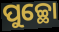
ପୁଚ୍ଛୋ